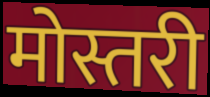
मोस्तरी